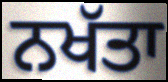
ਨਖੱਤਾ